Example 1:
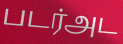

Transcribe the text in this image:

படர்அட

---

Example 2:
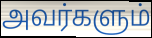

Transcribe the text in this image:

அவர்களும்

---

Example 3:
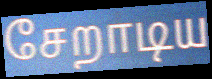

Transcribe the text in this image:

சேறாடிய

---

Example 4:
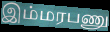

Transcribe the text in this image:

இம்மரபணு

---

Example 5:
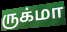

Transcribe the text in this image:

ருக்மா